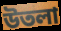
উতলা